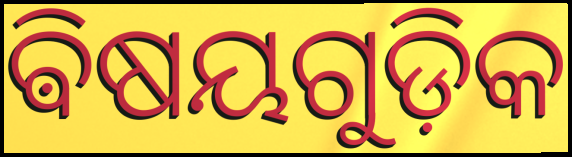
ଵିଷୟଗୁଡ଼ିକ